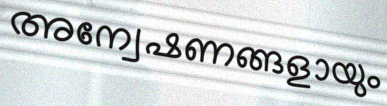
അന്വേഷണങ്ങളായും